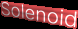
Solenoid